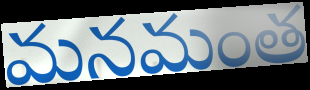
మనమంత